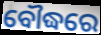
ବୌଦ୍ଧରେ